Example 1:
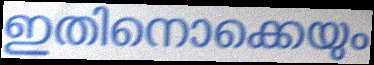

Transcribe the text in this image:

ഇതിനൊക്കെയും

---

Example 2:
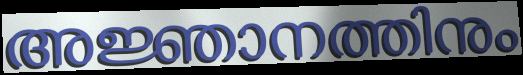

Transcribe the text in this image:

അജ്ഞാനത്തിനും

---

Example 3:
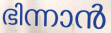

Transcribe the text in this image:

ഭിന്നാൻ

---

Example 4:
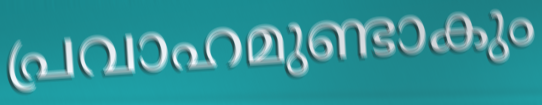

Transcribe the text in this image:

പ്രവാഹമുണ്ടാകും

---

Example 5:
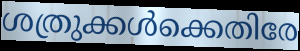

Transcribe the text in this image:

ശത്രുക്കൾക്കെതിരേ